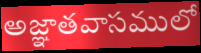
అజ్ఞాతవాసములో